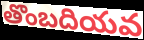
తొంబదియవ